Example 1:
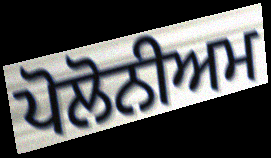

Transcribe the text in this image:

ਪੋਲੋਨੀਅਮ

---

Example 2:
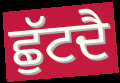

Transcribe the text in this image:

ਛੁੱਟਦੈ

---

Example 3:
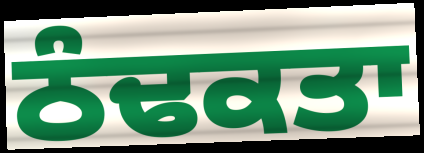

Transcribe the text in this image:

ਠੰਢਕਤਾ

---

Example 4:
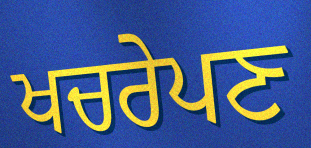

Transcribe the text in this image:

ਖਚਰੇਪਣ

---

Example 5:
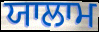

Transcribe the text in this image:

ਯਾਲਾਮ